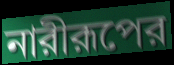
নারীরূপের